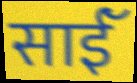
साईॅ